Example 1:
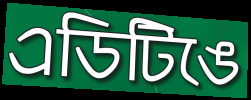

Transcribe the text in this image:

এডিটিঙে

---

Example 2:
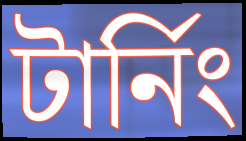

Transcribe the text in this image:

টার্নিং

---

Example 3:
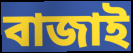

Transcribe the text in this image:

বাজাই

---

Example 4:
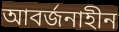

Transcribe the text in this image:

আবর্জনাহীন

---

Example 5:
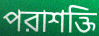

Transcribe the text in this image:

পরাশক্তি